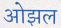
ओझल